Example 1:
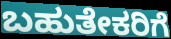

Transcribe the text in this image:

ಬಹುತೇಕರಿಗೆ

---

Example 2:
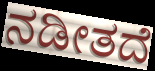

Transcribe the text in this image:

ನಡೀತದೆ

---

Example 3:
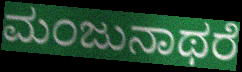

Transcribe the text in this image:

ಮಂಜುನಾಥರೆ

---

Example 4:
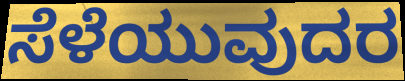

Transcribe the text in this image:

ಸೆಳೆಯುವುದರ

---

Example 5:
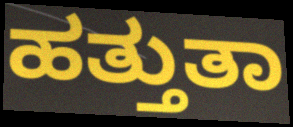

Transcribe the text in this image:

ಹತ್ತುತಾ